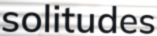
solitudes